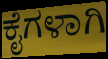
ಕೈಗಳಾಗಿ